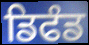
ਡਿਫੰਡ